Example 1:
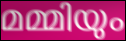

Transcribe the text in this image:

മമ്മിയും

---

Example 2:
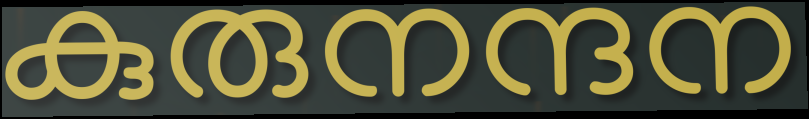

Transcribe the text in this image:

കുരുനന്ദന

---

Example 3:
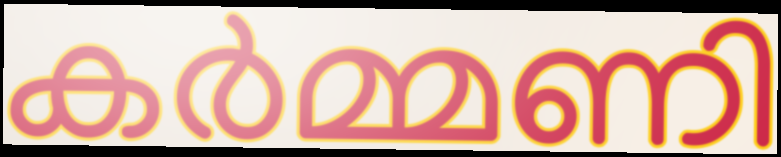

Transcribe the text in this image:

കർമ്മണി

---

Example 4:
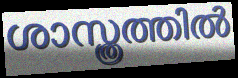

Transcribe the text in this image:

ശാസ്ത്രത്തിൽ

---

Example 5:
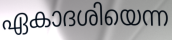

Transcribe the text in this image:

ഏകാദശിയെന്ന